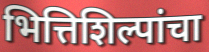
भित्तिशिल्पांचा